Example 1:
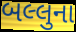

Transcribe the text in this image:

બલ્લુના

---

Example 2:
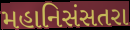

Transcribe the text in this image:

મહાનિસંસતરા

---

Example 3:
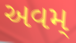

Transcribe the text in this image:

અવમ્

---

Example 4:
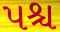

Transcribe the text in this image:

પશ્ચ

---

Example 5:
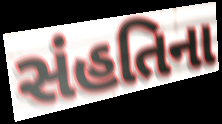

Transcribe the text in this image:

સંહતિના